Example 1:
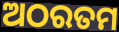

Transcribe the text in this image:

ଅଠରତମ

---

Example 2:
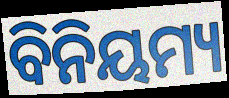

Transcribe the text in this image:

ବିନିୟମ୍ୟ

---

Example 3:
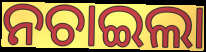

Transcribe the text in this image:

ନଚାଇଲା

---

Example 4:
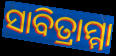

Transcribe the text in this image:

ସାବିତ୍ରାମ୍ମା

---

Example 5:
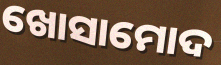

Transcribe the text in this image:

ଖୋସାମୋଦ